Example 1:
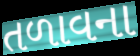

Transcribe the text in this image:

તળાવના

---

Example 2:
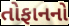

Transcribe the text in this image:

તોફાનનો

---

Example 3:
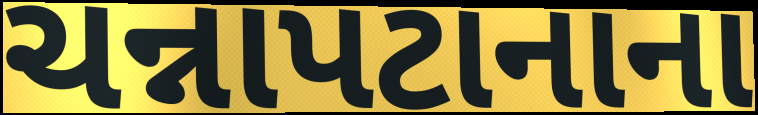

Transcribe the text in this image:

ચન્નાપટાનાના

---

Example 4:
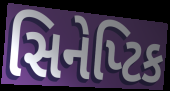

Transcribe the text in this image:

સિનેપ્ટિક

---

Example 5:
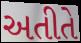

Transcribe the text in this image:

અતીતે